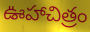
ఊహాచిత్రం